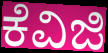
ಕೆವಿಜಿ